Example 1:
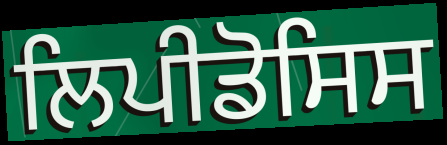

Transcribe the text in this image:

ਲਿਪੀਡੋਸਿਸ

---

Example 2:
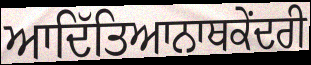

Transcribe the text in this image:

ਆਦਿੱਤਿਆਨਾਥਕੇਂਦਰੀ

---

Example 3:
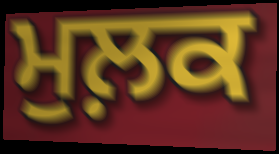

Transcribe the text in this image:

ਮੁਲ਼ਕ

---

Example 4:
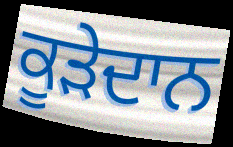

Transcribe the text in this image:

ਕੂੜੇਦਾਨ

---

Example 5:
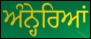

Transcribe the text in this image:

ਅੰਨ੍ਹੇਰਿਆਂ